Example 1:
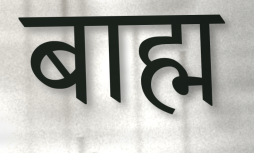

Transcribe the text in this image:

बाह्म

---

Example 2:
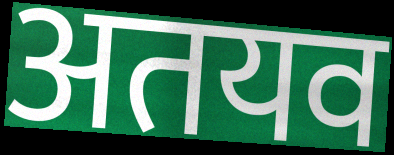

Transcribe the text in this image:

अतयव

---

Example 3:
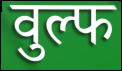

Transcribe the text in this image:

वुल्फ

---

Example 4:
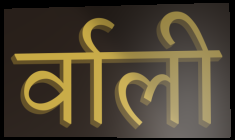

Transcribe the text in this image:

र्वाली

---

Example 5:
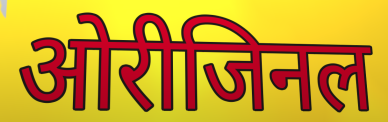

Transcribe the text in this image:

ओरीजिनल